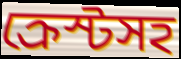
ক্রেস্টসহ